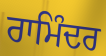
ਰਾਮਿੰਦਰ